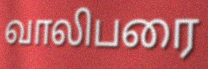
வாலிபரை